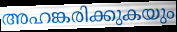
അഹങ്കരിക്കുകയും